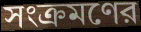
সংক্রমণের